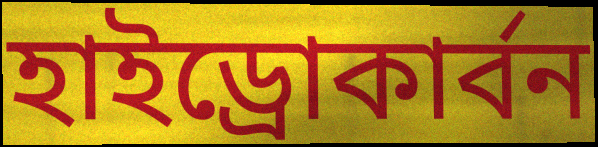
হাইড্রোকার্বন